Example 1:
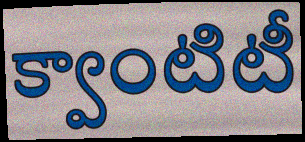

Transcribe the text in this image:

క్వాంటిటీ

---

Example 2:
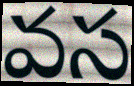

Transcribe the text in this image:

వస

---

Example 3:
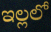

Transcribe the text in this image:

ఇల్లలో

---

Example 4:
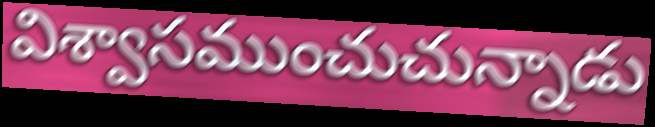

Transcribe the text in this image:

విశ్వాసముంచుచున్నాడు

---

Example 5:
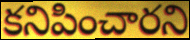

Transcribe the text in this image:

కనిపించారని